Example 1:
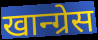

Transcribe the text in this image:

खान्ग्रेस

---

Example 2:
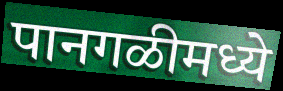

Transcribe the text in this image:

पानगळीमध्ये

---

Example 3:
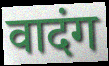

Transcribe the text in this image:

वादंग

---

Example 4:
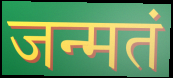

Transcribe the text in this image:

जन्मतं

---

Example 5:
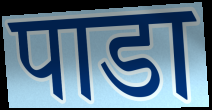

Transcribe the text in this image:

पाडा